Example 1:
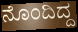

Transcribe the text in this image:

ನೊಂದಿದ್ದ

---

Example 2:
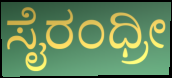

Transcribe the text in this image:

ಸೈರಂಧ್ರೀ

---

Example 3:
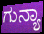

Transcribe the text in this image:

ಗುನ್ಯಾ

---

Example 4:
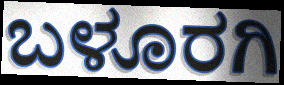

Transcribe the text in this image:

ಬಳೂರಗಿ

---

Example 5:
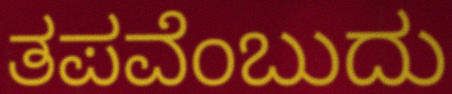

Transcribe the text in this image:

ತಪವೆಂಬುದು